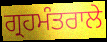
ਗ੍ਰਹਮੰਤਰਾਲੇ